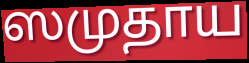
ஸமுதாய